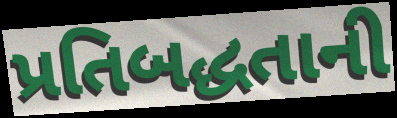
પ્રતિબદ્ધતાની